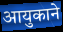
आयुकाने